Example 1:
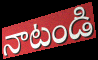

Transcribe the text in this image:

నాటండి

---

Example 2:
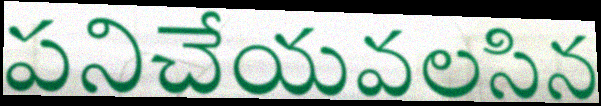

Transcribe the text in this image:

పనిచేయవలసిన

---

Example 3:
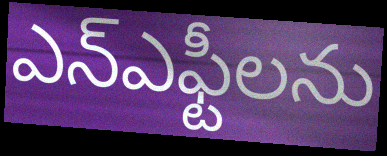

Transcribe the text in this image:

ఎన్ఎఫ్టీలను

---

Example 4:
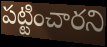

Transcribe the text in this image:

పట్టించారని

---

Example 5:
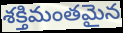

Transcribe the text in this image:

శక్తిమంతమైన